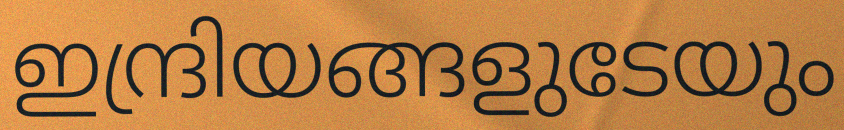
ഇന്ദ്രിയങ്ങളുടേയും